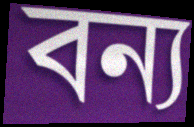
বন্য